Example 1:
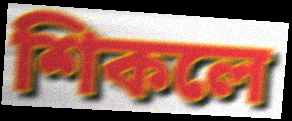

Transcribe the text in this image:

শিকলে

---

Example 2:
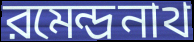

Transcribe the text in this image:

রমেন্দ্রনাথ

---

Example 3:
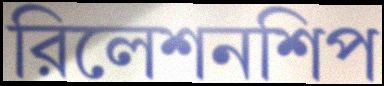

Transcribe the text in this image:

রিলেশনশিপ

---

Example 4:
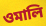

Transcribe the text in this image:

ওমালি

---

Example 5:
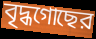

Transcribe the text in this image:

বৃদ্ধগোছের